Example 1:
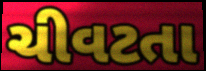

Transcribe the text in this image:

ચીવટતા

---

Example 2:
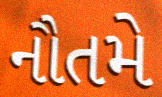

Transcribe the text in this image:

નૌતમે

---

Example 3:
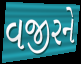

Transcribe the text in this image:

વજીરને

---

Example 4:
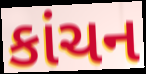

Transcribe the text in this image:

કાંચન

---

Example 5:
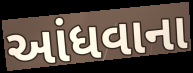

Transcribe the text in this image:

આંધવાના